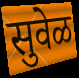
सुवेळ